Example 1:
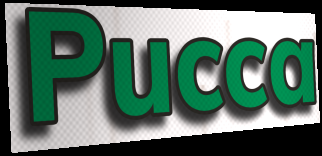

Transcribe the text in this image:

Pucca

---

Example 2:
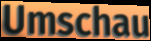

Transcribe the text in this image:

Umschau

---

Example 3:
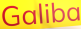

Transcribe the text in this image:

Galiba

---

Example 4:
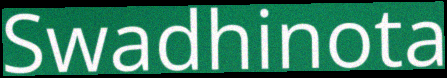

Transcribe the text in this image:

Swadhinota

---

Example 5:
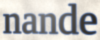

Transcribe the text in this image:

nande